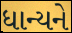
ધાન્યને